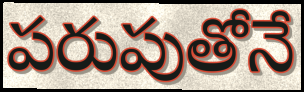
పరుపుతోనే